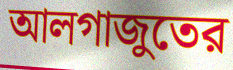
আলগাজুতের